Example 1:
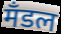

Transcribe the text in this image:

मँडल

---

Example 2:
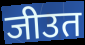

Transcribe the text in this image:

जीउत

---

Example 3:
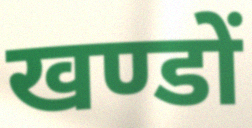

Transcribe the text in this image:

खण्डों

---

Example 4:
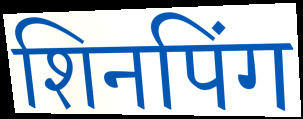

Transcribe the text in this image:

शिनपिंग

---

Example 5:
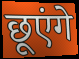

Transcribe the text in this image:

छूएंगे